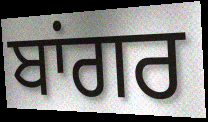
ਬਾਂਗਰ